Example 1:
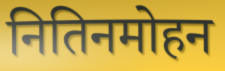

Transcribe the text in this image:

नितिनमोहन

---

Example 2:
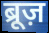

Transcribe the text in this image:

ब्रूज़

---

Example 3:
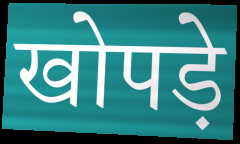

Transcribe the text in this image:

खोपड़े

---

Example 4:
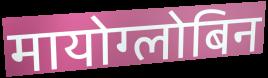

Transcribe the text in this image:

मायोग्लोबिन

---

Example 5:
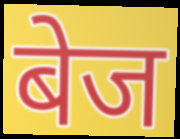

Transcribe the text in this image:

बेज